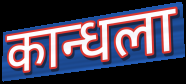
कान्धला